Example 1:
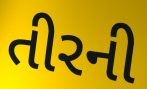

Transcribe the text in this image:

તીરની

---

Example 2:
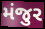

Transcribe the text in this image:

મંજુર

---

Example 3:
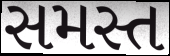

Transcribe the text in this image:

સમસ્ત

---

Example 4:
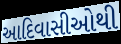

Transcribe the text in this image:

આદિવાસીઓથી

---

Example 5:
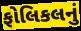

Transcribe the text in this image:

ફોલિકલનું